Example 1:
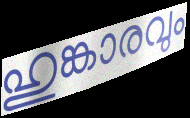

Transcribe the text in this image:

ഹുങ്കാരവും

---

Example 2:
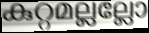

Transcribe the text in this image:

കുറ്റമല്ലല്ലോ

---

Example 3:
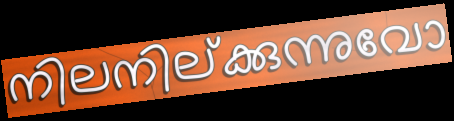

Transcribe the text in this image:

നിലനില്ക്കുന്നുവോ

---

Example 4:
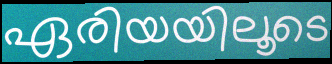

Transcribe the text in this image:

ഏരിയയിലൂടെ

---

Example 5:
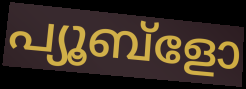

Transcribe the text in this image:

പ്യൂബ്ളോ